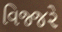
વિજ્જરે